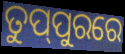
ତୁପ୍‌ପୁରରେ